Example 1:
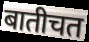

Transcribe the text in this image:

बातीचत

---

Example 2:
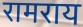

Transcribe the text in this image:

रामराय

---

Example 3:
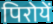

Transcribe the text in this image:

पिरोयें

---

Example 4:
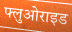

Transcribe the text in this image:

फ्लुओराइड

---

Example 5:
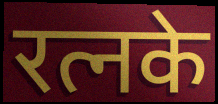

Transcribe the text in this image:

रत्नके